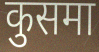
कुसमा